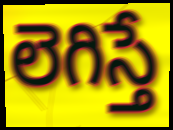
లెగిస్తే